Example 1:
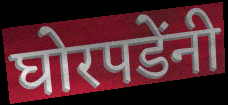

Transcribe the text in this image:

घोरपडेंनी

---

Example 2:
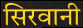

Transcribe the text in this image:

सिरवानी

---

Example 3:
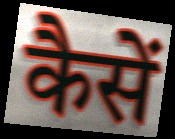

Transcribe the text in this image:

कैसें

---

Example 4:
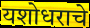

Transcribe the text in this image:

यशोधराचे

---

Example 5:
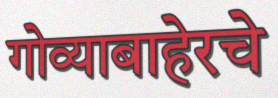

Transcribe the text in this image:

गोव्याबाहेरचे